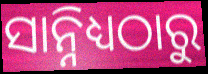
ସାନ୍ନିଧ୍ୟଠାରୁ